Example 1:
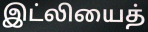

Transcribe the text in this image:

இட்லியைத்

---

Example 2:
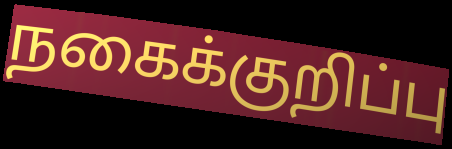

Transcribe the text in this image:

நகைக்குறிப்பு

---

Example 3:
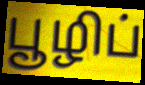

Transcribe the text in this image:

பூழிப்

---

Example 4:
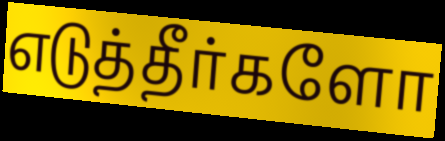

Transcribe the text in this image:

எடுத்தீர்களோ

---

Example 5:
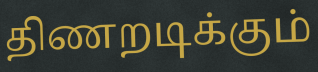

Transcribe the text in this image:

திணறடிக்கும்